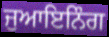
ਜੁਆਇਨਿੰਗ